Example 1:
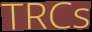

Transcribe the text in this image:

TRCs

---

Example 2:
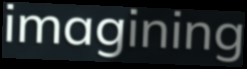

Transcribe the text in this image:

imagining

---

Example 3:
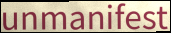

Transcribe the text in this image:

unmanifest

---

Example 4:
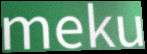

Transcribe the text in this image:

meku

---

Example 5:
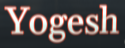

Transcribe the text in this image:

Yogesh